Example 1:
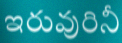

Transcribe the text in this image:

ఇరువురినీ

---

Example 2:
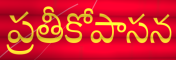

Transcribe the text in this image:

ప్రతీకోపాసన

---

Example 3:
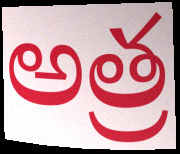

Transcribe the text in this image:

అత్ర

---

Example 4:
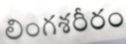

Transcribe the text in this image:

లింగశరీరం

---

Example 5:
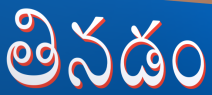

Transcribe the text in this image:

తినడం